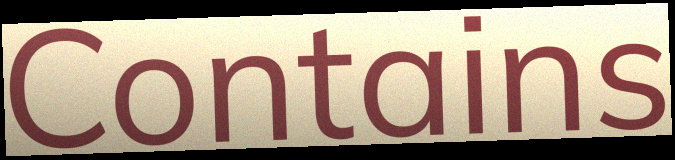
Contains